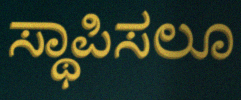
ಸ್ಥಾಪಿಸಲೂ